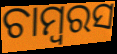
ଚାମ୍ବରସ